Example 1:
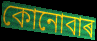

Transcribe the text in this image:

কোনোবাৰ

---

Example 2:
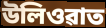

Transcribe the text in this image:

উলিওৱাত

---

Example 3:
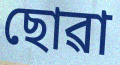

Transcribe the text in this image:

ছোৱা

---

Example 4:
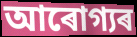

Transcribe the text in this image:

আৰোগ্যৰ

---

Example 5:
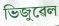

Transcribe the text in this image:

ভিজুৱেল